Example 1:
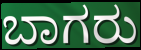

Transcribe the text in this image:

ಬಾಗರು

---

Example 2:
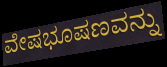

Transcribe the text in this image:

ವೇಷಭೂಷಣವನ್ನು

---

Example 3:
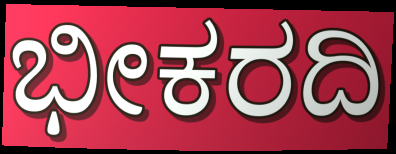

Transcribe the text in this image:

ಭೀಕರದಿ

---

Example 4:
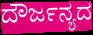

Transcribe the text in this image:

ದೌರ್ಜನ್ಯದ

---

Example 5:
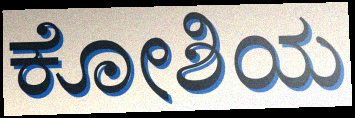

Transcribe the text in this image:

ಕೋಶಿಯ